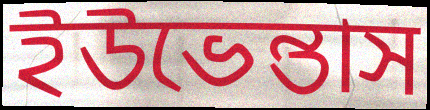
ইউভেন্তাস